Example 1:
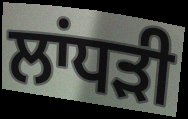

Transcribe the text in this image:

ਲਾਂਧੜੀ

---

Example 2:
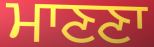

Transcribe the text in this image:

ਮਾਣਣਾ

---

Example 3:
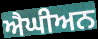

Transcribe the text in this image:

ਐਘੀਅਨ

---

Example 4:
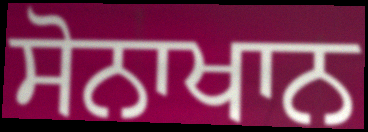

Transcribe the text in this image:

ਸੋਨਾਖਾਨ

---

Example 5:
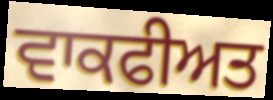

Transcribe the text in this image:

ਵਾਕਫੀਅਤ